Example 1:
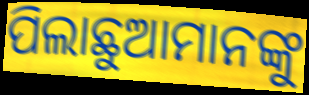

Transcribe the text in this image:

ପିଲାଛୁଆମାନଙ୍କୁ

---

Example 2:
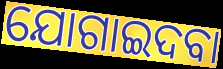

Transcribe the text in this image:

ଯୋଗାଇଦବା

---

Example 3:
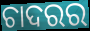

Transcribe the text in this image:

ଚାଦରର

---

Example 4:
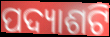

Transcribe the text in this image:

ପଦ୍ୟାଶଟି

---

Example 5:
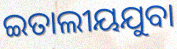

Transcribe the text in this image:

ଇତାଲୀୟଯୁବା